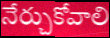
నేర్చుకోవాలి